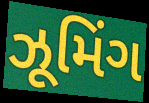
ઝૂમિંગ